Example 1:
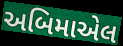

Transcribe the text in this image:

અબિમાએલ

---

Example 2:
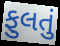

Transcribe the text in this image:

ફુલતું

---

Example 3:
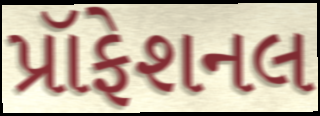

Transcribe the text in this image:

પ્રૉફેશનલ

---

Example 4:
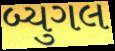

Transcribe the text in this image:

બ્યુગલ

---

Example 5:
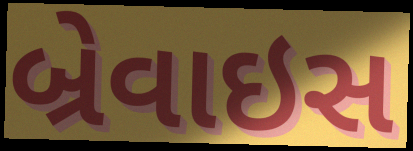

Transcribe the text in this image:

બ્રેવાઇસ